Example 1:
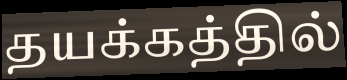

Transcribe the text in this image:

தயக்கத்தில்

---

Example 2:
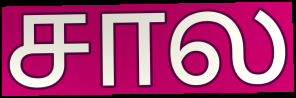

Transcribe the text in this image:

சால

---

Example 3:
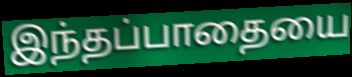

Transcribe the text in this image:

இந்தப்பாதையை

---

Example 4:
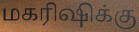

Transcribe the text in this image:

மகரிஷிக்கு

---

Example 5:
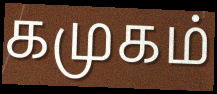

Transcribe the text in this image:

கமுகம்